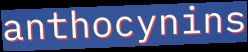
anthocynins